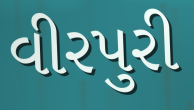
વીરપુરી